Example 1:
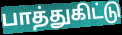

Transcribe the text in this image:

பாத்துகிட்டு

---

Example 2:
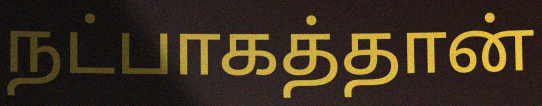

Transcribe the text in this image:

நட்பாகத்தான்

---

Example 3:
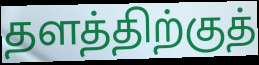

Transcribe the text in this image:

தளத்திற்குத்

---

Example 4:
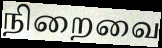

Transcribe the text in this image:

நிறைவை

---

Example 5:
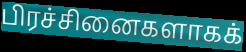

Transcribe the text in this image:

பிரச்சினைகளாகக்